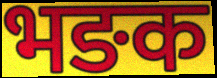
भङक